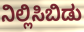
ನಿಲ್ಲಿಸಿಬಿಡು